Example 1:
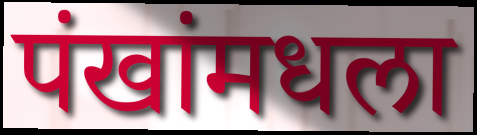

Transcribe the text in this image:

पंखांमधला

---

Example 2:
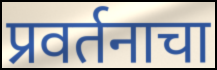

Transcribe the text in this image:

प्रवर्तनाचा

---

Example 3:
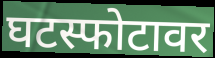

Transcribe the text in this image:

घटस्फोटावर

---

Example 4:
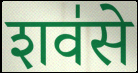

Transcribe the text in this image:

शव॑से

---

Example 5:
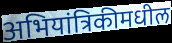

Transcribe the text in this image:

अभियांत्रिकीमधील